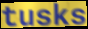
tusks